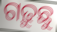
ଗଢ଼ୁଛୁ